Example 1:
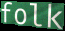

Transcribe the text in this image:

folk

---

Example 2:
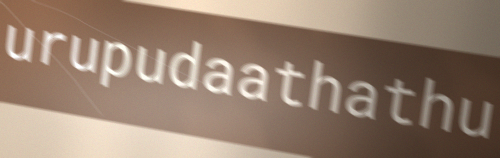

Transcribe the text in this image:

urupudaathathu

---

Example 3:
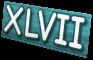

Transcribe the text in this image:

XLVII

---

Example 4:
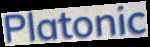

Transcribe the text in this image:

Platonic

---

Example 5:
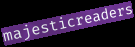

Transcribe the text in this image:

majesticreaders